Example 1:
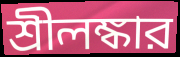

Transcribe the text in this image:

শ্রীলঙ্কার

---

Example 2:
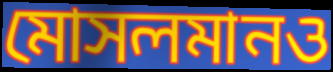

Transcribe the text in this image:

মোসলমানও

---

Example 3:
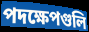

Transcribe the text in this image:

পদক্ষেপগুলি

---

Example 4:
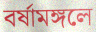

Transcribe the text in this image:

বর্ষামঙ্গলে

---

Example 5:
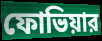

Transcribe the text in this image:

ফোভিয়ার